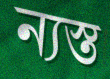
ন্যস্ত